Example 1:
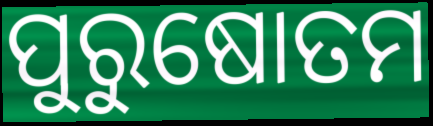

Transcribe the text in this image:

ପୁରୁଷୋତମ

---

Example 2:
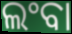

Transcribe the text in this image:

ଲଂବା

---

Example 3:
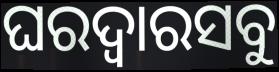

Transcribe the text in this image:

ଘରଦ୍ୱାରସବୁ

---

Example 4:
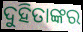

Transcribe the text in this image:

ଦୁହିତାଙ୍କର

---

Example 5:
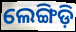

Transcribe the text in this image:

ଲେଙ୍ଗିଡ଼ି